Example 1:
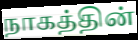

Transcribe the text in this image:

நாகத்தின்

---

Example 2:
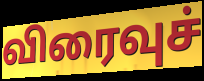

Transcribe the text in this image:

விரைவுச்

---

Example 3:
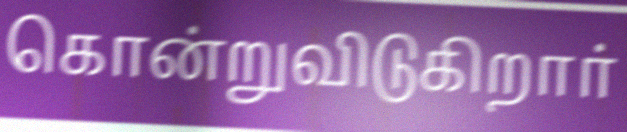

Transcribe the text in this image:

கொன்றுவிடுகிறார்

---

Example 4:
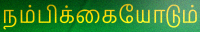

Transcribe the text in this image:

நம்பிக்கையோடும்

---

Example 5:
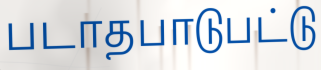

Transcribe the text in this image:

படாதபாடுபட்டு